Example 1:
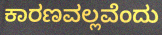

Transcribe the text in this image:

ಕಾರಣವಲ್ಲವೆಂದು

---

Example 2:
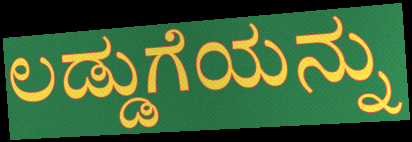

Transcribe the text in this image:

ಲಡ್ಡುಗೆಯನ್ನು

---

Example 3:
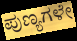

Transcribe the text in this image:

ಪುಣ್ಯಗಳೇ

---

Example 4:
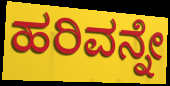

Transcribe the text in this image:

ಹರಿವನ್ನೇ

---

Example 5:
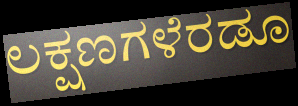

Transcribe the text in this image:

ಲಕ್ಷಣಗಳೆರಡೂ